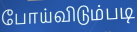
போய்விடும்படி